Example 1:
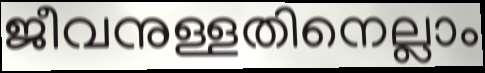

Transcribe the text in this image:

ജീവനുള്ളതിനെല്ലാം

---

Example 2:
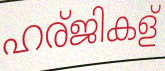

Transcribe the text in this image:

ഹര്ജികള്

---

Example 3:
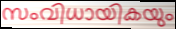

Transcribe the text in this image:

സംവിധായികയും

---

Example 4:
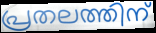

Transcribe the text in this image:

പ്രതലത്തിന്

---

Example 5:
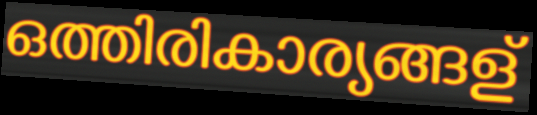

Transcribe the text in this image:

ഒത്തിരികാര്യങ്ങള്